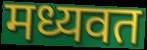
मध्यवत